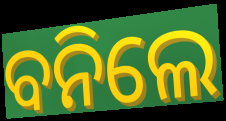
ବନିଲେ